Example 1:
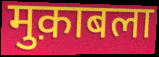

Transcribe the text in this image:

मुक़ाबला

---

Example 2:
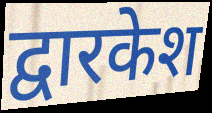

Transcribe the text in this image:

द्वारकेश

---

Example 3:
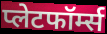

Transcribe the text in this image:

प्लेटफॉर्म्स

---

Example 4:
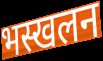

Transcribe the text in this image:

भस्खलन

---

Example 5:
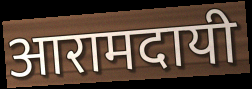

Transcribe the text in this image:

आरामदायी